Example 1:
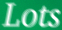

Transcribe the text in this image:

Lots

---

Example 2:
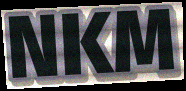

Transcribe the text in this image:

NKM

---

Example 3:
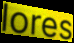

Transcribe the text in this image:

lores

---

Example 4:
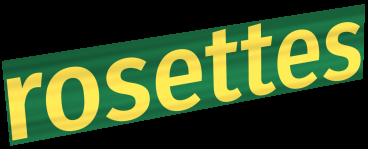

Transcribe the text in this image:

rosettes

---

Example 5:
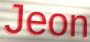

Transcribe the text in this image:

Jeon